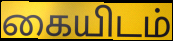
கையிடம்